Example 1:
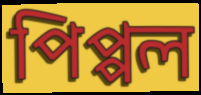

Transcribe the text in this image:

পিপ্পল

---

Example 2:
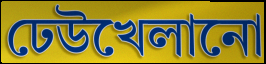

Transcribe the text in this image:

ঢেউখেলানো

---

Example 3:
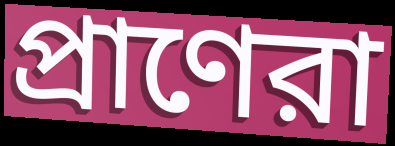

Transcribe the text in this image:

প্রাণেরা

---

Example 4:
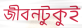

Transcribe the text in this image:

জীবনটুকুই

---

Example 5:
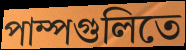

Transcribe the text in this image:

পাম্পগুলিতে